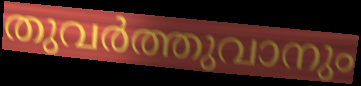
തുവർത്തുവാനും